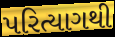
પરિત્યાગથી